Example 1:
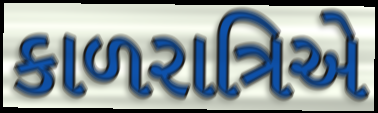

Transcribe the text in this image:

કાળરાત્રિએ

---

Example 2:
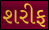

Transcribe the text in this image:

શરીફ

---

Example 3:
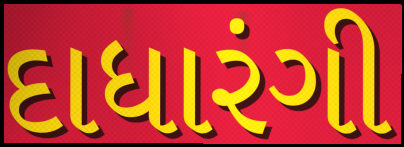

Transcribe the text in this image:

દાધારંગી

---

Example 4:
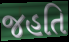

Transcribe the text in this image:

જહતિ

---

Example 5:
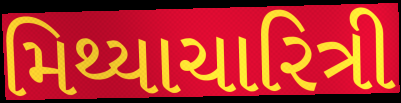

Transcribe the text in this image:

મિથ્યાચારિત્રી